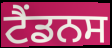
ਟੈਂਡਨਸ